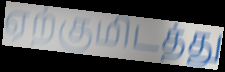
ஏற்குமிடத்து